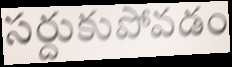
సర్దుకుపోవడం